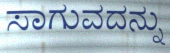
ಸಾಗುವದನ್ನು